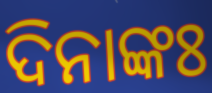
ଦିନାଙ୍କଃ